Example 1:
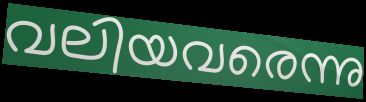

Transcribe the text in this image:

വലിയവരെന്നു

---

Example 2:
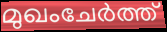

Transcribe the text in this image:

മുഖംചേർത്ത്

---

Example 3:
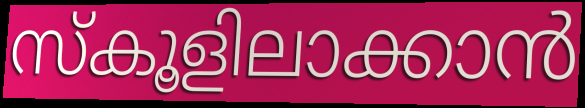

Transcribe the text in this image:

സ്കൂളിലാക്കാൻ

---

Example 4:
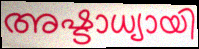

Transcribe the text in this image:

അഷ്ടാധ്യായി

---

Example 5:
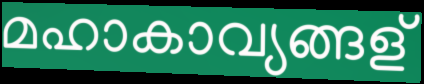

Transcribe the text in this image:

മഹാകാവ്യങ്ങള്